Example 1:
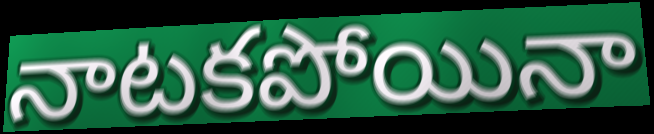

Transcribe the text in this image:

నాటకపోయినా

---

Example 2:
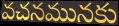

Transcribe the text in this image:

వచనమునకు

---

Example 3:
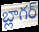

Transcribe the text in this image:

బ్లాగర్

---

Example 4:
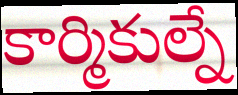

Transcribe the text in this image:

కార్మికుల్నే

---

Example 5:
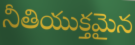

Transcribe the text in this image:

నీతియుక్తమైన